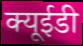
क्यूईडी